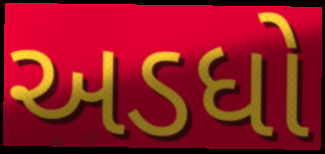
અડધો